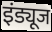
इंड्यूज